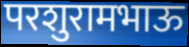
परशुरामभाऊ